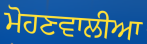
ਮੋਹਣਵਾਲੀਆ